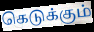
கெடுக்கும்